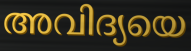
അവിദ്യയെ